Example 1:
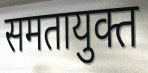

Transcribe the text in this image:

समतायुक्त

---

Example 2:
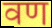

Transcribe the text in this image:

वण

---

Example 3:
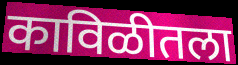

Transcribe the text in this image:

काविळीतला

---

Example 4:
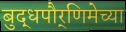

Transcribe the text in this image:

बुद्धपौर्णिमेच्या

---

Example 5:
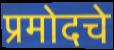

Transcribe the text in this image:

प्रमोदचे